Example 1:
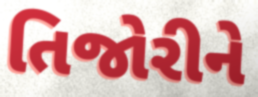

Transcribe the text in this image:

તિજોરીને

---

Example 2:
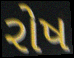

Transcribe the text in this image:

રોષ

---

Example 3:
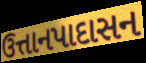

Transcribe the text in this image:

ઉત્તાનપાદાસન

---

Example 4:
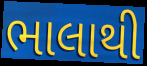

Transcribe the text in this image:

ભાલાથી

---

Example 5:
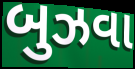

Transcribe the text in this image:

બુઝવા